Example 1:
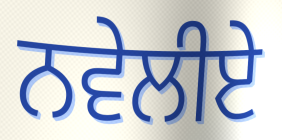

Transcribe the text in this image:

ਨਵੇਲੀਏ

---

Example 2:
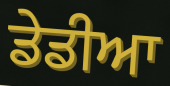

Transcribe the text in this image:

ਡੇਡੀਆ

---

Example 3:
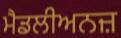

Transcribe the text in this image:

ਮੈਡਲੀਅਨਜ਼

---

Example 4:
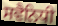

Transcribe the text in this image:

ਸਵੈਨਿਧੀ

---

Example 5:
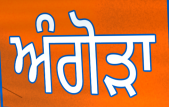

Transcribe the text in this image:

ਅੰਗੋੜਾ